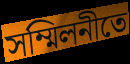
সম্মিলনীতে